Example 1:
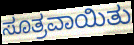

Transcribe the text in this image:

ಸೂತ್ರವಾಯಿತು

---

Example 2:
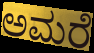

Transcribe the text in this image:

ಅಮರೆ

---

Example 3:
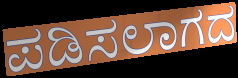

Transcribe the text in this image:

ಪಡಿಸಲಾಗದ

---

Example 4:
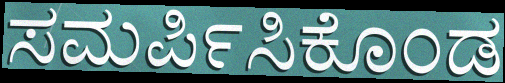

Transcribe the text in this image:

ಸಮರ್ಪಿಸಿಕೊಂಡ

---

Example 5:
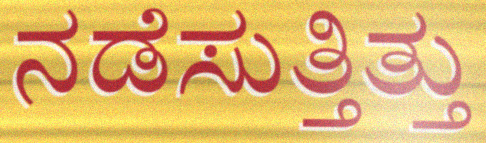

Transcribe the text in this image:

ನಡೆಸುತ್ತಿತ್ತು